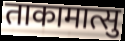
ताकामात्सु